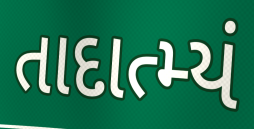
તાદાત્મ્યં